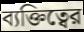
ব্যক্তিত্বের